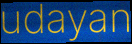
udayan